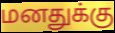
மனதுக்கு